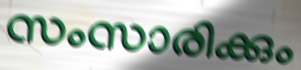
സംസാരിക്കും